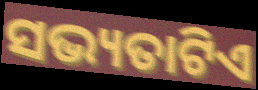
ସଭ୍ୟତାଟିଏ